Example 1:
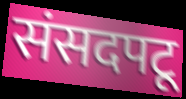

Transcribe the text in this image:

संसदपटू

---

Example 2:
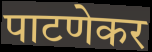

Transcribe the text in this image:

पाटणेकर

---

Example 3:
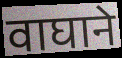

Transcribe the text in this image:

वाघाने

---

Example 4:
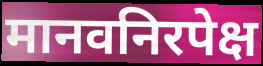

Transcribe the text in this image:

मानवनिरपेक्ष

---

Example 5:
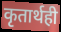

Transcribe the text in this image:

कृतार्थही